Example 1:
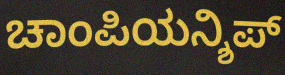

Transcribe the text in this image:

ಚಾಂಪಿಯನ್ಶಿಪ್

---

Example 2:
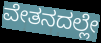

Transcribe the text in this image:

ವೇತನದಲ್ಲೇ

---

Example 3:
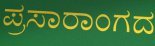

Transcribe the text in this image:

ಪ್ರಸಾರಾಂಗದ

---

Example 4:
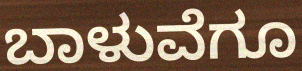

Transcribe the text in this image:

ಬಾಳುವೆಗೂ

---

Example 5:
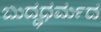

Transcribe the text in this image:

ಬುದ್ಧಧರ್ಮದ